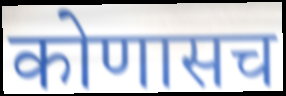
कोणासच